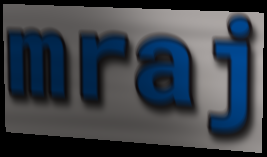
mraj